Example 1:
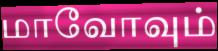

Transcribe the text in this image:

மாவோவும்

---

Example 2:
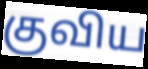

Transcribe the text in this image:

குவிய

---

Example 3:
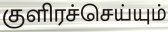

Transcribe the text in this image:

குளிரச்செய்யும்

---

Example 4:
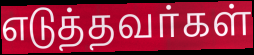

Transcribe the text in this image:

எடுத்தவர்கள்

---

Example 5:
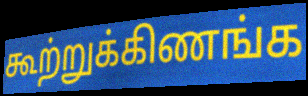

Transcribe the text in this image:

கூற்றுக்கிணங்க